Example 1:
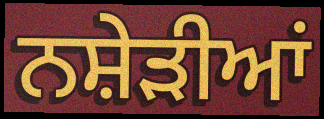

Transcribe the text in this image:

ਨਸ਼ੇੜੀਆਂ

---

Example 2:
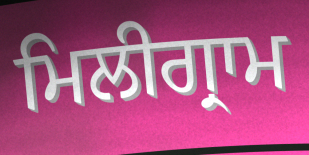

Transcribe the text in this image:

ਮਿਲੀਗ੍ਰਾਮ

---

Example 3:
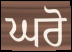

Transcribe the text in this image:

ਘਰੋ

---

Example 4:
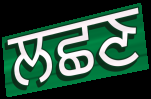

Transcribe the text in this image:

ਲਛਣ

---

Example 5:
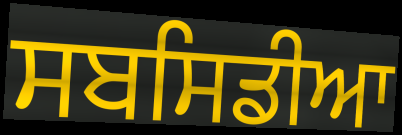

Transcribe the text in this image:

ਸਬਸਿਡੀਆ